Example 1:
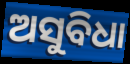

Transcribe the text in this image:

ଅସୁବିଧା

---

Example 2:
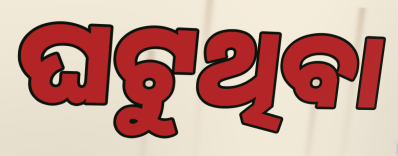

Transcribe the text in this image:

ଘଟୁଥିବା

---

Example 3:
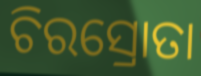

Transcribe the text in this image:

ଚିରସ୍ରୋତା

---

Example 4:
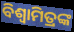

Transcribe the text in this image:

ବିଶ୍ଵାମିତ୍ରଙ୍କ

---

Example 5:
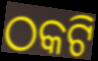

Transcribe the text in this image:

ଠକଟି